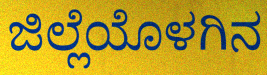
ಜಿಲ್ಲೆಯೊಳಗಿನ